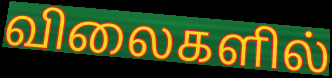
விலைகளில்